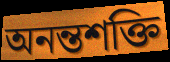
অনন্তশক্তি